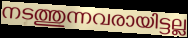
നടത്തുന്നവരായിട്ടല്ല